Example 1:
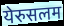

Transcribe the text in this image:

येरुसलम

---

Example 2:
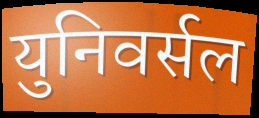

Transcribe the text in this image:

युनिवर्सल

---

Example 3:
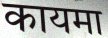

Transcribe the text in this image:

कायमा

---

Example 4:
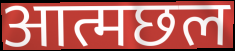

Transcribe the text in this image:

आत्मछल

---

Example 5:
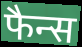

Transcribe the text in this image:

फैन्स